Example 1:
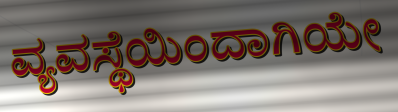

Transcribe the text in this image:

ವ್ಯವಸ್ಥೆಯಿಂದಾಗಿಯೇ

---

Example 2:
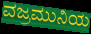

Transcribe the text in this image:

ವಜ್ರಮುನಿಯ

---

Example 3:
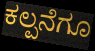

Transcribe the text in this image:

ಕಲ್ಪನೆಗೂ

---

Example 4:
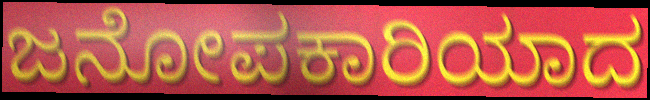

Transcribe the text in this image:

ಜನೋಪಕಾರಿಯಾದ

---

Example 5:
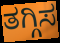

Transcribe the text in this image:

ತಗ್ಗಿಸ